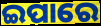
ଇପାରେ